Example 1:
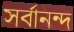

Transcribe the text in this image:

সৰ্বানন্দ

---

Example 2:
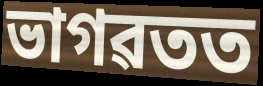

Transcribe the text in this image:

ভাগৱতত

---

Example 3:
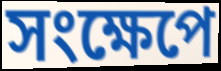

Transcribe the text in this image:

সংক্ষেপে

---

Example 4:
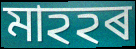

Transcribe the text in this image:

মাহহৰ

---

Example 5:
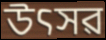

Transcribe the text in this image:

উৎসৱ